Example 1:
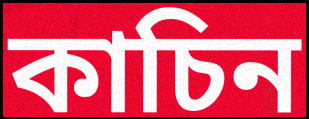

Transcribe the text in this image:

কাচিন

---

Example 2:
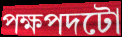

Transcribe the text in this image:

পক্ষপদটো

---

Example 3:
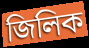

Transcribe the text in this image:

জিলিক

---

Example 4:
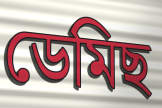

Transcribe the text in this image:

ডেমিছ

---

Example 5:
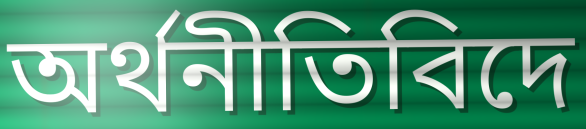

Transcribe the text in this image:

অৰ্থনীতিবিদে